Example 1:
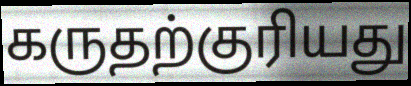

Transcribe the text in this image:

கருதற்குரியது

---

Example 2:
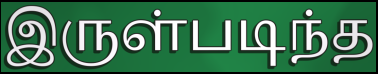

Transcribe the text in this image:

இருள்படிந்த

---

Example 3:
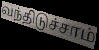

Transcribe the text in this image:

வந்திடுச்சாம்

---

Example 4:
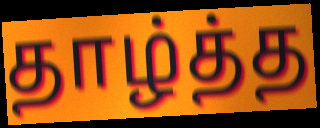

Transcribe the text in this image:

தாழ்த்த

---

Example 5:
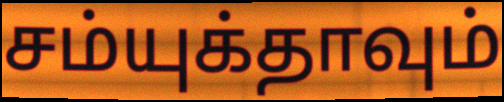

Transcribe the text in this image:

சம்யுக்தாவும்